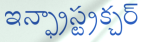
ఇన్ఫ్రాస్ట్రక్చర్